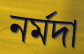
নর্মদা